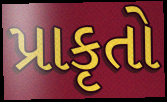
પ્રાકૃતો